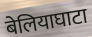
बेलियाघाटा